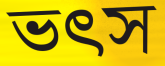
ভৎস